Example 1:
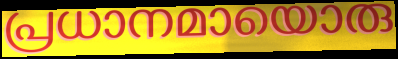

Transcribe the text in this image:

പ്രധാനമായൊരു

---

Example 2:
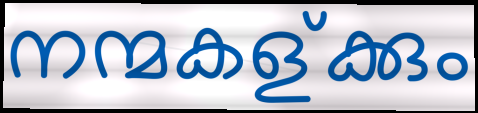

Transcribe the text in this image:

നന്മകള്ക്കും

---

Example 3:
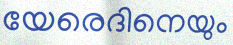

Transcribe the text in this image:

യേരെദിനെയും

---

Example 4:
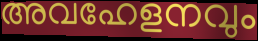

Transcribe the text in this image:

അവഹേളനവും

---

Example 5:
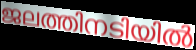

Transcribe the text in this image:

ജലത്തിനടിയിൽ